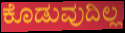
ಕೊಡುವುದಿಲ್ಲ